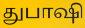
துபாஷி